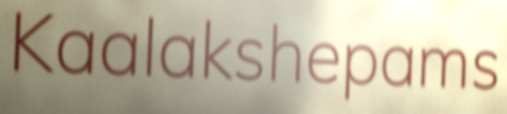
Kaalakshepams